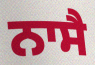
ਨਾਸੈ